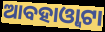
ଆବହାଓ୍ୱାଟା